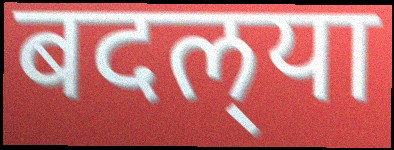
बदल्या